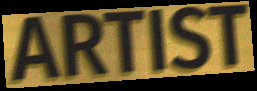
ARTIST